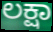
ಲಕ್ಷಾ